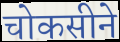
चोकसीने